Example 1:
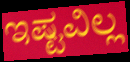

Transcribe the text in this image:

ಇಷ್ಟವಿಲ್ಲ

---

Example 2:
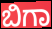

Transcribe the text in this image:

ಬಿಗಾ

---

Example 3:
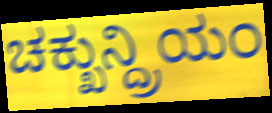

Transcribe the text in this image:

ಚಕ್ಖುನ್ದ್ರಿಯಂ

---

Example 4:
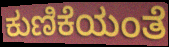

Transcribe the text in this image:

ಕುಣಿಕೆಯಂತೆ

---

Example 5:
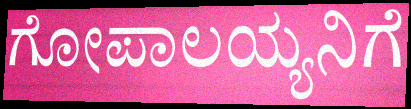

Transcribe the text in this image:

ಗೋಪಾಲಯ್ಯನಿಗೆ